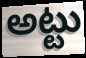
అట్టు